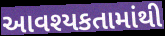
આવશ્યકતામાંથી